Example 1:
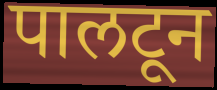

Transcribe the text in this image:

पालटून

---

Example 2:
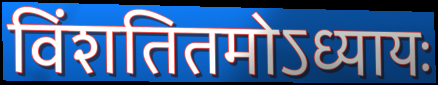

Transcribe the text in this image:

विंशतितमोऽध्यायः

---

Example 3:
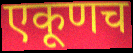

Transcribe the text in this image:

एकूणच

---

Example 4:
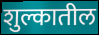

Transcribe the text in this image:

शुल्कातील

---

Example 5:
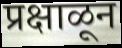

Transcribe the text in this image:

प्रक्षाळून